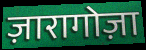
ज़ारागोज़ा